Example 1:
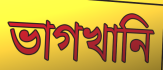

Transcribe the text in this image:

ভাগখানি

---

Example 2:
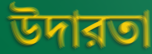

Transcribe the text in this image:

উদারতা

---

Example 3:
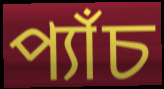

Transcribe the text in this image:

প্যাঁচ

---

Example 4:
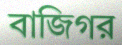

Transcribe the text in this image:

বাজিগর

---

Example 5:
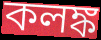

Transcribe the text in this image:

কলঙ্ক